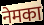
नेमका